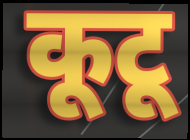
कूटू